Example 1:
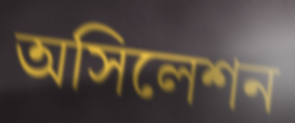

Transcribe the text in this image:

অসিলেশন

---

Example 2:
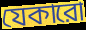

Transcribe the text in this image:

যেকারো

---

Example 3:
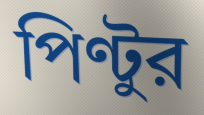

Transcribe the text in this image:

পিণ্টুর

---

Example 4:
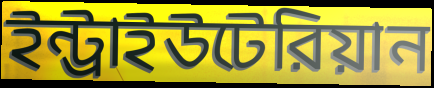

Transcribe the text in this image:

ইন্ট্রাইউটেরিয়ান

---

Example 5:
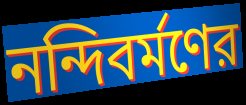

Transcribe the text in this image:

নন্দিবর্মণের